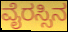
ವೈರಸ್ಸಿನ